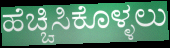
ಹೆಚ್ಚಿಸಿಕೊಳ್ಳಲು